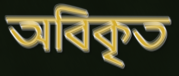
অবিকৃত